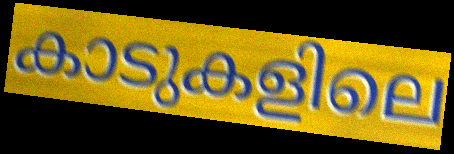
കാടുകളിലെ